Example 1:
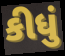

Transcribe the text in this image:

કીધું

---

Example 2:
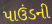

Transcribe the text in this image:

પાઉંડની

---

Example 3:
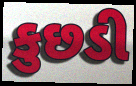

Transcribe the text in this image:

કુછડી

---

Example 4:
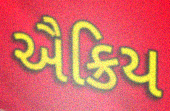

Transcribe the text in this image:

ઐક્રિય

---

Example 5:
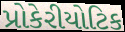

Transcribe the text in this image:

પ્રોકેરીયોટિક